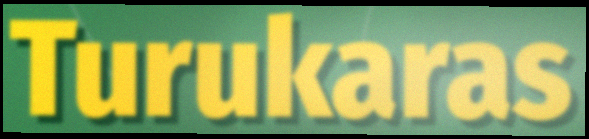
Turukaras